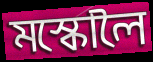
মস্কোলৈ